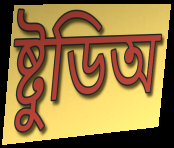
ষ্টুডিঅ